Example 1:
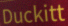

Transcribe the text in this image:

Duckitt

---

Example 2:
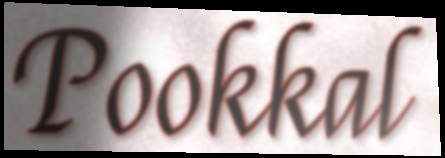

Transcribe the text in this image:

Pookkal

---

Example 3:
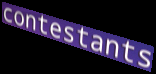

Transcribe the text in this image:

contestants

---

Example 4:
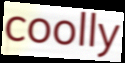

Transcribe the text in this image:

coolly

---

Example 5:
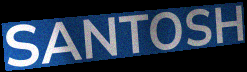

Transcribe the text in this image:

SANTOSH